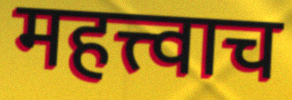
महत्त्वाच